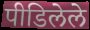
पीडिलेले